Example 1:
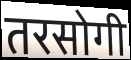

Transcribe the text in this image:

तरसोगी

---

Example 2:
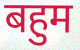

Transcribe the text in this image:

बहुम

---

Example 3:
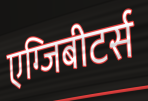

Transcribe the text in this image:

एग्जिबीटर्स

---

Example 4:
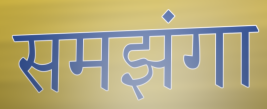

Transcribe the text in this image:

समझंगा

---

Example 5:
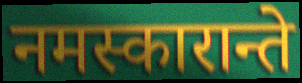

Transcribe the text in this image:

नमस्कारान्ते